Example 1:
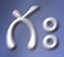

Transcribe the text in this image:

గః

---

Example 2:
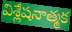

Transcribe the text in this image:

విశ్లేషనాత్మక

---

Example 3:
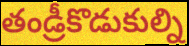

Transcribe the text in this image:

తండ్రీకొడుకుల్ని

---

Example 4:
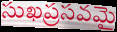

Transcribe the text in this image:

సుఖప్రసవమై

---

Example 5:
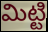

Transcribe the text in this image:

మిట్టి